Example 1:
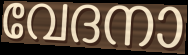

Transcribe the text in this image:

വേദനാ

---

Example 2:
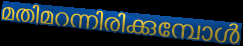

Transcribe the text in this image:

മതിമറന്നിരിക്കുമ്പോൾ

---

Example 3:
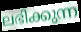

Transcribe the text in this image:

ലഭിക്കുന്ന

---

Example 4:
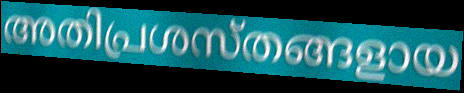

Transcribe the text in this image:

അതിപ്രശസ്തങ്ങളായ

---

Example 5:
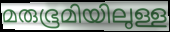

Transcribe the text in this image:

മരുഭൂമിയിലുള്ള